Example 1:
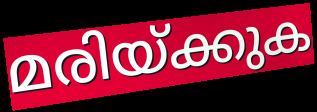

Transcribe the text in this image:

മരിയ്ക്കുക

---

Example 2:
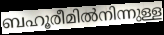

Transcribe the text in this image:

ബഹൂരീമിൽനിന്നുള്ള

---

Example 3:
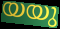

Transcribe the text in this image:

യയു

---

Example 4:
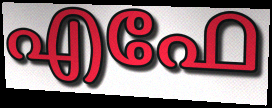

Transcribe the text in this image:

എഫേ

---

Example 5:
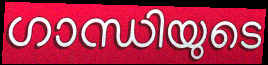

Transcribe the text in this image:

ഗാന്ധിയുടെ